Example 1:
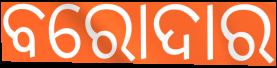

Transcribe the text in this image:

ବରୋଦାର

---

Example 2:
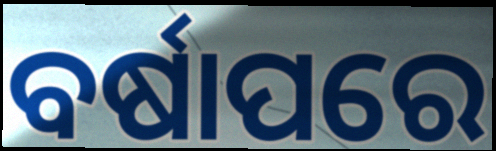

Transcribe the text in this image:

ବର୍ଷାପରେ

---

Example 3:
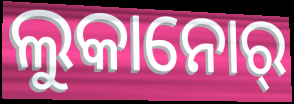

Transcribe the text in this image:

ଲୁକାନୋର୍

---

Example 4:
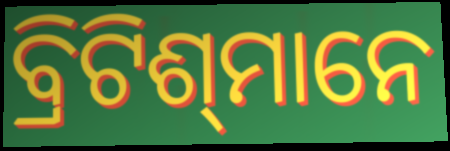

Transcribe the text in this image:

ବ୍ରିଟିଶ୍‌ମାନେ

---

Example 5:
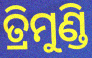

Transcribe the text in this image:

ତ୍ରିମୁଣ୍ଡି